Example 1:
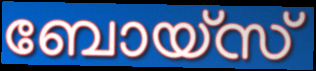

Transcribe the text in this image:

ബോയ്സ്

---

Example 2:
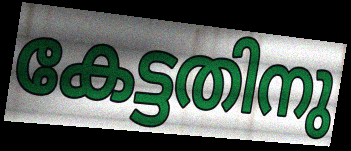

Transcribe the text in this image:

കേട്ടതിനു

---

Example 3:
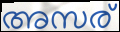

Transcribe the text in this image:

അസര്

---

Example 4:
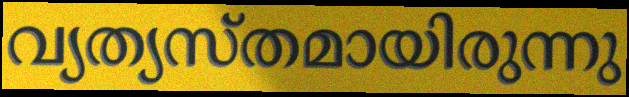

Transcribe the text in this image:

വ്യത്യസ്തമായിരുന്നു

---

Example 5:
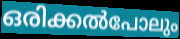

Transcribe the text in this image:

ഒരിക്കൽപോലും